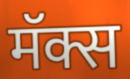
मॅक्स